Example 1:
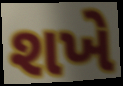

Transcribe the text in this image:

શખે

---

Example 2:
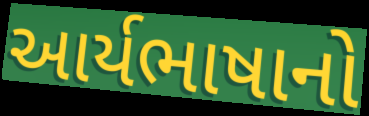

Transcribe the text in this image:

આર્યભાષાનો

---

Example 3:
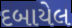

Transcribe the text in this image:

દબાયેલ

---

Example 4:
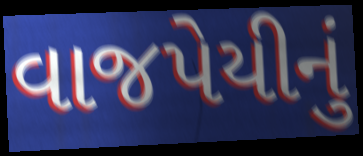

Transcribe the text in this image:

વાજપેયીનું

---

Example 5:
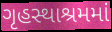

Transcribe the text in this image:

ગૃહસ્થાશ્રમમાં